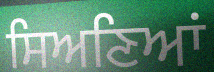
ਸਿਅਣਿਆਂ